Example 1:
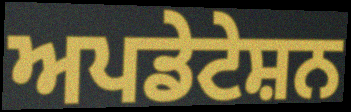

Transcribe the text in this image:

ਅਪਡੇਟੇਸ਼ਨ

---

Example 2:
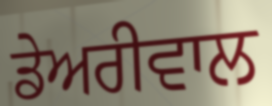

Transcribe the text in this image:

ਡੇਅਰੀਵਾਲ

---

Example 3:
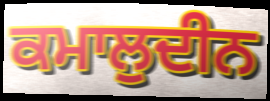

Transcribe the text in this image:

ਕਮਾਲੁਦੀਨ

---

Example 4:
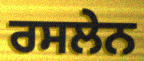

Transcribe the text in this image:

ਰਸਲੇਨ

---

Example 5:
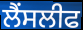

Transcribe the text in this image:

ਲੈਂਸਲੀਫ